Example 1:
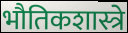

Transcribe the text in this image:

भौतिकशास्त्रे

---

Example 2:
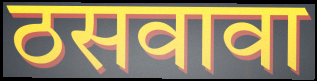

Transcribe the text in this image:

ठसवावा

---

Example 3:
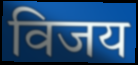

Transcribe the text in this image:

विजय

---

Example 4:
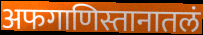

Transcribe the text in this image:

अफगाणिस्तानातलं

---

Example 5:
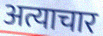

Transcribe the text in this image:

अत्याचार